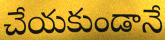
చేయకుండానే